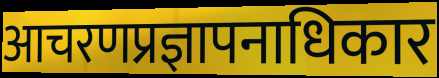
आचरणप्रज्ञापनाधिकार